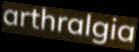
arthralgia